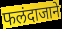
फलंदाजाने